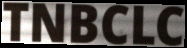
TNBCLC